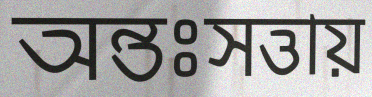
অন্তঃসত্তায়